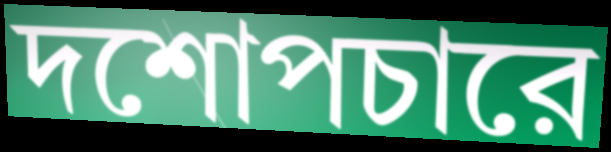
দশোপচারে